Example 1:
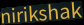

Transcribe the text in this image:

nirikshak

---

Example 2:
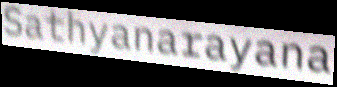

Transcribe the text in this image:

Sathyanarayana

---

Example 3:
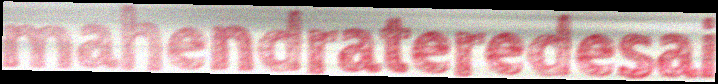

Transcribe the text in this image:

mahendrateredesai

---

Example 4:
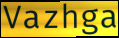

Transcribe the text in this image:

Vazhga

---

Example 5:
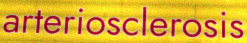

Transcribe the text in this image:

arteriosclerosis